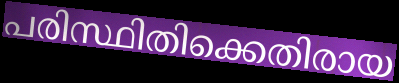
പരിസ്ഥിതിക്കെതിരായ